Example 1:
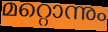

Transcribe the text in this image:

മറ്റൊന്നും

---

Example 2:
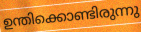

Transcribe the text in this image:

ഉന്തിക്കൊണ്ടിരുന്നു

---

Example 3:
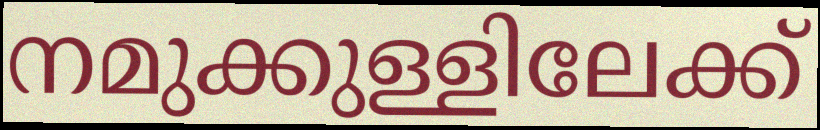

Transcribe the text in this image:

നമുക്കുള്ളിലേക്ക്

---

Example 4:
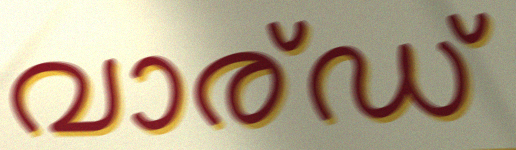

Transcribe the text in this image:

വാര്ഡ്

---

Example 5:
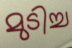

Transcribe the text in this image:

മുടിച്ച